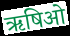
ऋषिओ